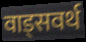
वाड्सवर्थ